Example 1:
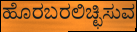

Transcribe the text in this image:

ಹೊರಬರಲಿಚ್ಛಿಸುವ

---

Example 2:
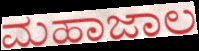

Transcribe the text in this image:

ಮಹಾಜಾಲ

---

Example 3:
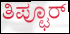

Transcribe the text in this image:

ತಿಪ್ಟೂರ್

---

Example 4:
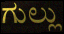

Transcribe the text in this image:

ಗುಲ್ಲು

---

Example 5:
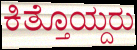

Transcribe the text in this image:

ಕಿತ್ತೊಯ್ದರು